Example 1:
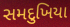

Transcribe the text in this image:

સમદુખિયા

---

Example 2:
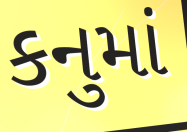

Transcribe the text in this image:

કનુમાં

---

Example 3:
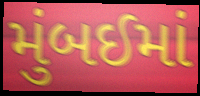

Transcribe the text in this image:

મુંબઈમાં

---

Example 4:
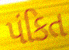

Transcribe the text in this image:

પંકિત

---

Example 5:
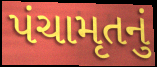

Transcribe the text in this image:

પંચામૃતનું